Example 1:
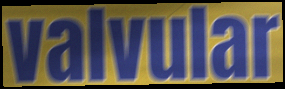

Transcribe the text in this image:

valvular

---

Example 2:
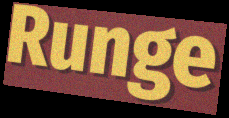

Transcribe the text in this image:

Runge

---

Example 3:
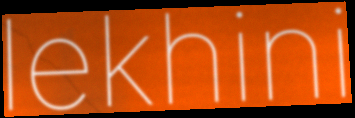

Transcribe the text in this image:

lekhini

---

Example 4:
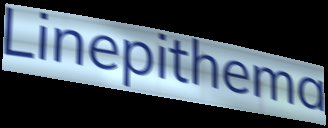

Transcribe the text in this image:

Linepithema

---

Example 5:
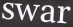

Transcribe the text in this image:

swar